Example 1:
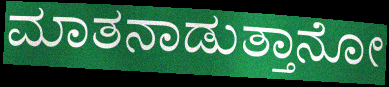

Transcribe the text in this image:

ಮಾತನಾಡುತ್ತಾನೋ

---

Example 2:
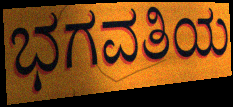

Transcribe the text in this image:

ಭಗವತಿಯ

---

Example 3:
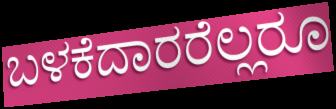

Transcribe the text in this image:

ಬಳಕೆದಾರರೆಲ್ಲರೂ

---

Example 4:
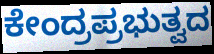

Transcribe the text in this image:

ಕೇಂದ್ರಪ್ರಭುತ್ವದ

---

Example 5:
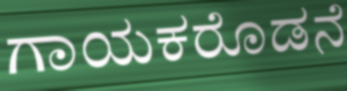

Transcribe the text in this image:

ಗಾಯಕರೊಡನೆ